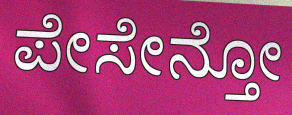
ಪೇಸೇನ್ತೋ